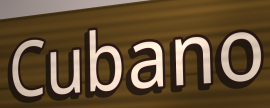
Cubano